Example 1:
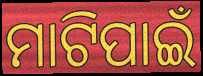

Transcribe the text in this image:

ମାଟିପାଇଁ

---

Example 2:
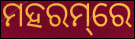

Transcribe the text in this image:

ମହରମ୍‌ରେ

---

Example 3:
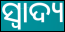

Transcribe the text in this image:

ସ୍ଵାଦ୍ୟ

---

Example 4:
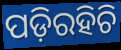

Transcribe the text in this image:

ପଡ଼ିରହିଚି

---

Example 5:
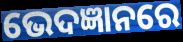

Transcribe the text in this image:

ଭେଦଜ୍ଞାନରେ